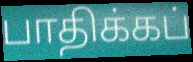
பாதிக்கப்